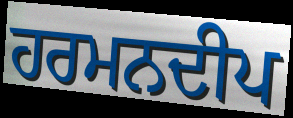
ਹਰਮਨਦੀਪ